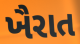
ખૈરાત